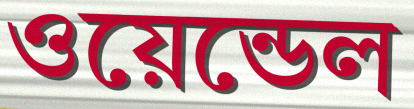
ওয়েন্ডেল